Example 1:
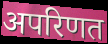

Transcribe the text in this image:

अपरिणत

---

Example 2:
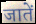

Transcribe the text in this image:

जातें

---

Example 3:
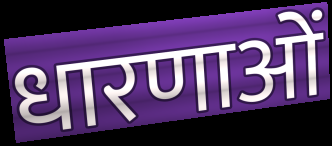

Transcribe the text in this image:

धारणाओं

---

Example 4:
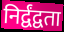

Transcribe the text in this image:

निर्द्वंद्वता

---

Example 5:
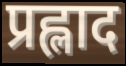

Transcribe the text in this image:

प्रह्लाद